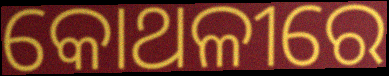
କୋଥଳୀରେ